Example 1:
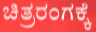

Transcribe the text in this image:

ಚಿತ್ರರಂಗಕ್ಕೆ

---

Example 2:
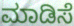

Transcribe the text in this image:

ಮಾಡಿಸೆ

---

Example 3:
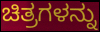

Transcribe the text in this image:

ಚಿತ್ರಗಳನ್ನು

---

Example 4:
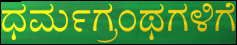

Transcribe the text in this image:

ಧರ್ಮಗ್ರಂಥಗಳಿಗೆ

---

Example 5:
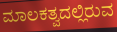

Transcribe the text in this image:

ಮಾಲಕತ್ವದಲ್ಲಿರುವ